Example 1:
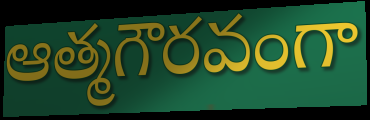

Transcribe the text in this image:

ఆత్మగౌరవంగా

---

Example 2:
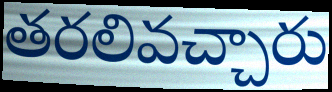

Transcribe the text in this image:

తరలివచ్చారు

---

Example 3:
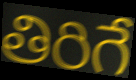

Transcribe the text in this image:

తిరిగే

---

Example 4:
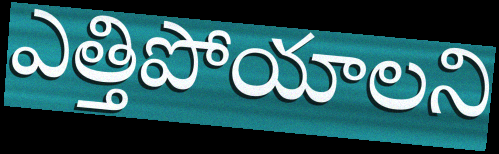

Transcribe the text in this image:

ఎత్తిపోయాలని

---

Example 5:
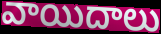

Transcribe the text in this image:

వాయిదాలు